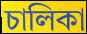
চালিকা